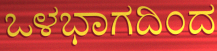
ಒಳಭಾಗದಿಂದ